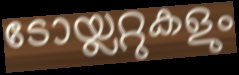
ടോയ്ലറ്റുകളും